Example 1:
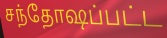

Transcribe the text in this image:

சந்தோஷப்பட்ட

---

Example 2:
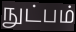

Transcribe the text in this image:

நுட்பம்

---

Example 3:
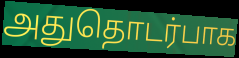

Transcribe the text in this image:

அதுதொடர்பாக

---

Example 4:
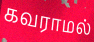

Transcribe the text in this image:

கவராமல்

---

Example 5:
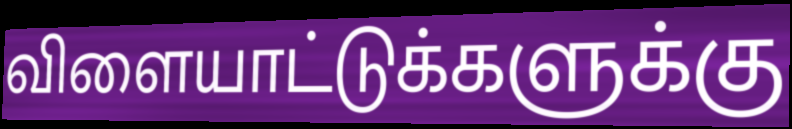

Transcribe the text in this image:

விளையாட்டுக்களுக்கு